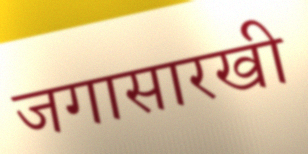
जगासारखी